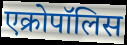
एक्रोपॉलिस